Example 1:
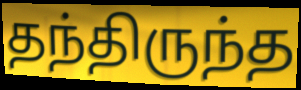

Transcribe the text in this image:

தந்திருந்த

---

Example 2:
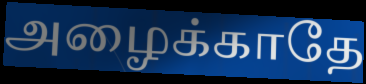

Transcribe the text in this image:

அழைக்காதே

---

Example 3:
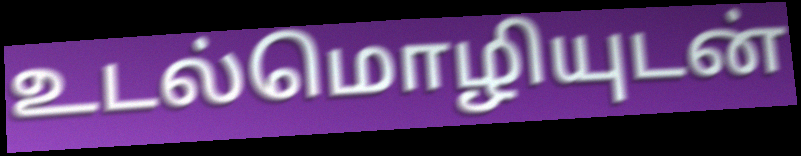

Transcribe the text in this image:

உடல்மொழியுடன்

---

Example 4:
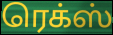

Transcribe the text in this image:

ரெக்ஸ்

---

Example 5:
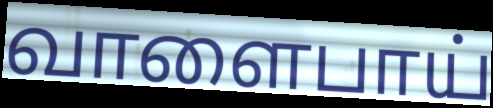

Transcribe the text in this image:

வாளைபாய்